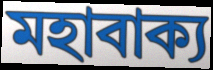
মহাবাক্য